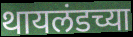
थायलंडच्या